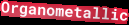
Organometallic